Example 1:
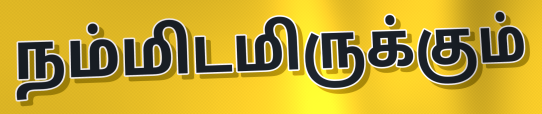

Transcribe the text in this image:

நம்மிடமிருக்கும்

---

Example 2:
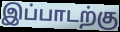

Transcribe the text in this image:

இப்பாடற்கு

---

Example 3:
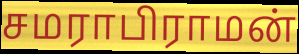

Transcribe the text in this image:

சமராபிராமன்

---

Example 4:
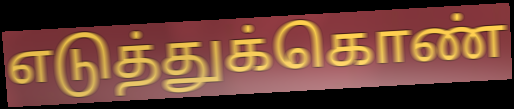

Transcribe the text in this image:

எடுத்துக்கொண்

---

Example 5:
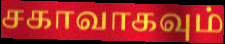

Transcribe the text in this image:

சகாவாகவும்